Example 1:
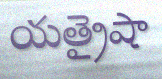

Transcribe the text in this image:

యత్రైషా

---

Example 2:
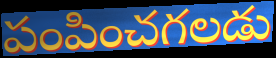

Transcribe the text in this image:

పంపించగలడు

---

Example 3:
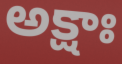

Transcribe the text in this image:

అక్షాః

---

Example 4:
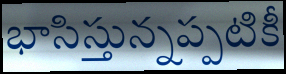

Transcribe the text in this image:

భాసిస్తున్నప్పటికీ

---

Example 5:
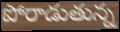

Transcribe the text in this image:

పోరాడుతున్న